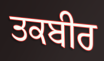
ਤਕਬੀਰ